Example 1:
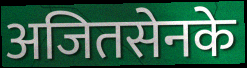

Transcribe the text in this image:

अजितसेनके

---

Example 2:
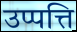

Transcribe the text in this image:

उप्पत्ति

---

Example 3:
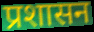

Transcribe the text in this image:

प्रशासन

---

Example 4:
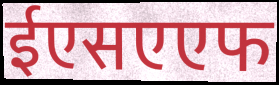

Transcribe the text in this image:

ईएसएएफ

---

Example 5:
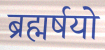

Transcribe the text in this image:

ब्रह्मर्षयो